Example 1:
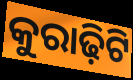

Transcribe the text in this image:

କୁରାଢ଼ିଟି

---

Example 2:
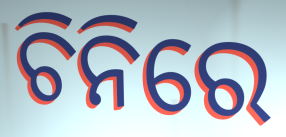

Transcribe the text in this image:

ଚିନିରେ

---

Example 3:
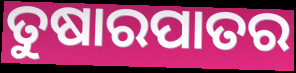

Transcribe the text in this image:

ତୁଷାରପାତର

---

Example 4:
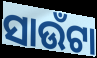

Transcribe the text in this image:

ସାଉଁଟା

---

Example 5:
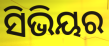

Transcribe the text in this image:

ସିଭିୟର